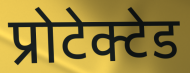
प्रोटेक्टेड